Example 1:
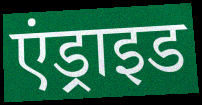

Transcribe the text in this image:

एंड्राइड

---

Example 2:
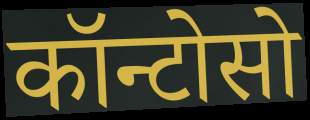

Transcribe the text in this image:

कॉन्टोसो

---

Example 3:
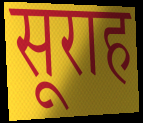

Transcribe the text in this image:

सूराह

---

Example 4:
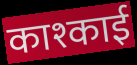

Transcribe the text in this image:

काश्काई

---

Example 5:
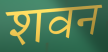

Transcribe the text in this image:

शवन